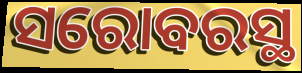
ସରୋବରସ୍ଥ